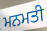
ਮਨਮਤੀ